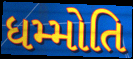
ધમ્મોતિ